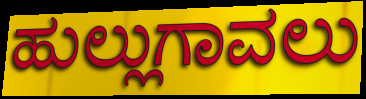
ಹುಲ್ಲುಗಾವಲು